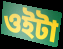
ওইটা